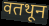
वतथून